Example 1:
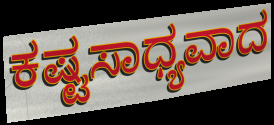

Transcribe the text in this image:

ಕಷ್ಟಸಾಧ್ಯವಾದ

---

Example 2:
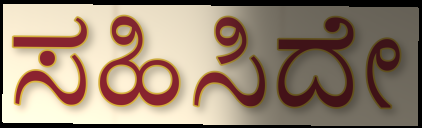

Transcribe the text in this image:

ಸಹಿಸಿದೇ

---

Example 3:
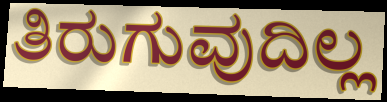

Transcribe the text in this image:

ತಿರುಗುವುದಿಲ್ಲ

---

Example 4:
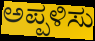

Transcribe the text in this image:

ಅಪ್ಪಳಿಸು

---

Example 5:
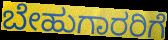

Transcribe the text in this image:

ಬೇಹುಗಾರರಿಗೆ